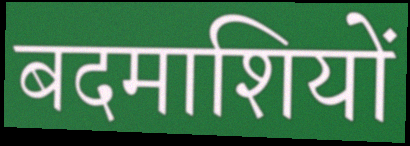
बदमाशियों